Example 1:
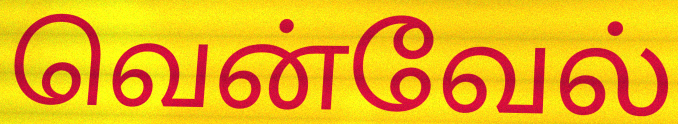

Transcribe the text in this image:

வென்வேல்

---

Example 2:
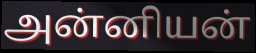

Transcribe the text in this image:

அன்னியன்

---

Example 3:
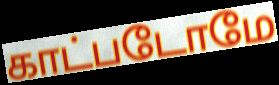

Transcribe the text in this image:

காட்படோமே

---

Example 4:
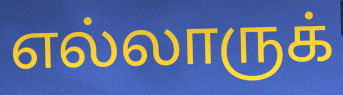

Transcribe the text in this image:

எல்லாருக்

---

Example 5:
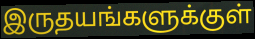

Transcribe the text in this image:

இருதயங்களுக்குள்